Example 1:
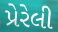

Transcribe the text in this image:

પ્રેરેલી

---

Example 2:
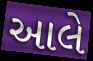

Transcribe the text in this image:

આલે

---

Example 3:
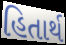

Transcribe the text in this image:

હિતાર્થ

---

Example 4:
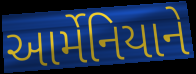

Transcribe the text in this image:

આર્મેનિયાને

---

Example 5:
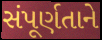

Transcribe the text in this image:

સંપૂર્ણતાને